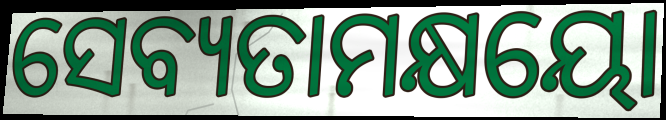
ସେବ୍ୟତାମକ୍ଷୟୋ